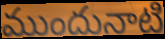
ముందునాటి